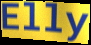
Elly